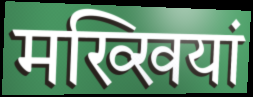
मख्खियां